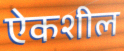
ऐकशील